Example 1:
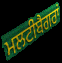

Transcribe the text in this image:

ਮਲਟੀਬੈਗਰਾਂ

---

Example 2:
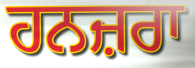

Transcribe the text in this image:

ਹਨਜ਼ਰਾ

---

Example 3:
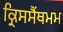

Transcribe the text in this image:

ਕ੍ਰਿਸਸੈਂਥਮਮ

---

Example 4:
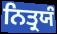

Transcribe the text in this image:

ਨਿਤ੍ਰਯੰ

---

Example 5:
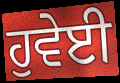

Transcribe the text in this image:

ਹੁਵੇਈ